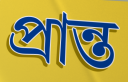
প্ৰান্ত